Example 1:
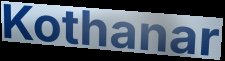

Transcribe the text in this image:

Kothanar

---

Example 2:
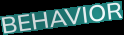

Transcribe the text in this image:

BEHAVIOR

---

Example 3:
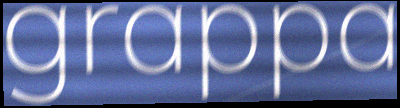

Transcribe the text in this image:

grappa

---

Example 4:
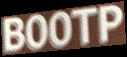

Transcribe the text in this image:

BOOTP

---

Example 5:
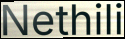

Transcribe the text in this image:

Nethili